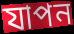
যাপন